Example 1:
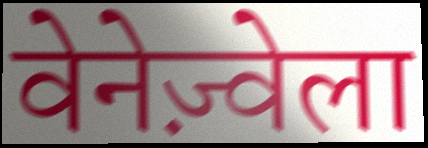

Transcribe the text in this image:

वेनेज़्वेला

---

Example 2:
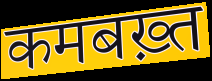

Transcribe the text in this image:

कमबख़्त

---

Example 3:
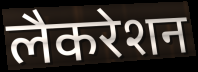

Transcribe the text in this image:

लैकरेशन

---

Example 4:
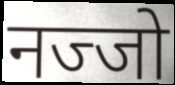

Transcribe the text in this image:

नज्जो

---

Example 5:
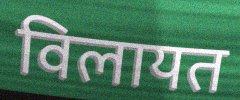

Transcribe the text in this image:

विलायत